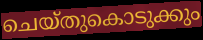
ചെയ്തുകൊടുക്കും